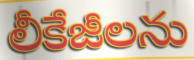
లీకేజీలను